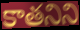
కాతనిని